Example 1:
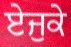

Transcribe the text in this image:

ਏਜੁਕੇ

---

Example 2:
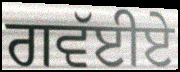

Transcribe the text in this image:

ਗਵੱਈਏ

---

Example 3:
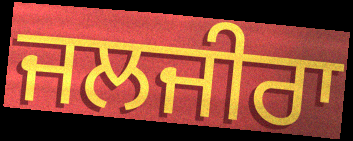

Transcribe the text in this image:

ਜਲਜੀਰਾ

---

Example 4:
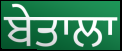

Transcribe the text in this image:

ਬੇਤਾਲਾ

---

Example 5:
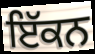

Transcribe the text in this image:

ਇੱਕਨ